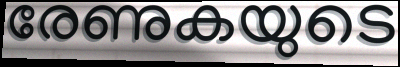
രേണുകയുടെ